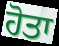
ਹੋਤਾ